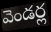
వెండర్ల